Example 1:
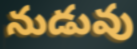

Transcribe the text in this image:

నుడువు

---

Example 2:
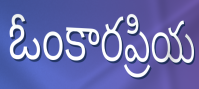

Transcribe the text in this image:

ఓంకారప్రియ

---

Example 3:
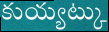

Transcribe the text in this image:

కుయ్యట్కు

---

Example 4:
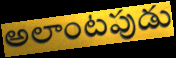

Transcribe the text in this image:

అలాంటపుడు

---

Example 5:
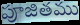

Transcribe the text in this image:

పూజితము